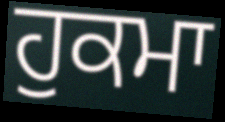
ਹੁਕਮਾ